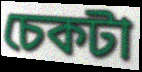
চেকটা